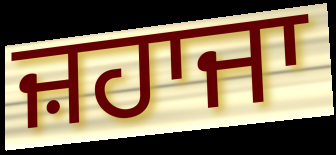
ਜ਼ਹਾਜਾ